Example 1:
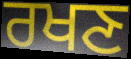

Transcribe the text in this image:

ਰਖਣ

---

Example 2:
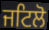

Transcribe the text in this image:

ਜਟਿਲੋ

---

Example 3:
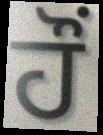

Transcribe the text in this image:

ਹੌਂ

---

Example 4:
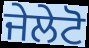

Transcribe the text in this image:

ਜੇਲੇਟੋ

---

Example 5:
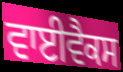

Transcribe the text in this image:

ਵਾਈਵੈਕਸ